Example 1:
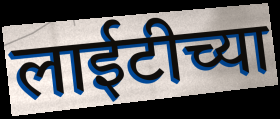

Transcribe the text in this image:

लाईटीच्या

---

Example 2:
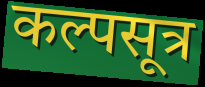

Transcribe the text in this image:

कल्पसूत्र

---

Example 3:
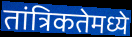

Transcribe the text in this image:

तांत्रिकतेमध्ये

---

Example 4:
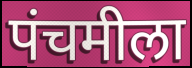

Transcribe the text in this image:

पंचमीला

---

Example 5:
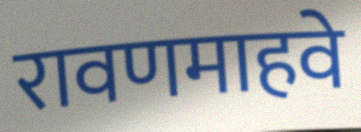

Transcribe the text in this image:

रावणमाहवे